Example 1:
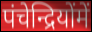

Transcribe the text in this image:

पंचेन्द्रियोंमें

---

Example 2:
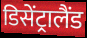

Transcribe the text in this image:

डिसेंट्रालैंड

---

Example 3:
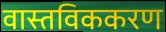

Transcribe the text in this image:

वास्तविककरण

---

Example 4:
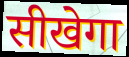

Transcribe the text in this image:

सीखेगा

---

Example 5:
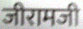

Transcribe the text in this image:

जीरामजी